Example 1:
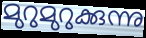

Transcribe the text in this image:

മുറുമുറുക്കുന്നു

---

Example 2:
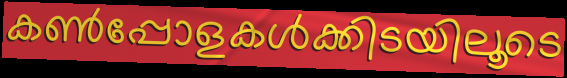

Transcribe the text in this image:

കൺപ്പോളകൾക്കിടയിലൂടെ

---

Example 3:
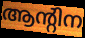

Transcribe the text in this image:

ആന്റിന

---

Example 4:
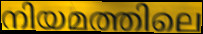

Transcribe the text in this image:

നിയമത്തിലെ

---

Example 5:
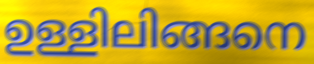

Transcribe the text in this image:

ഉള്ളിലിങ്ങനെ